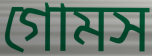
গোমস